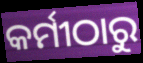
କର୍ମୀଠାରୁ